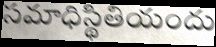
సమాధిస్థితియందు